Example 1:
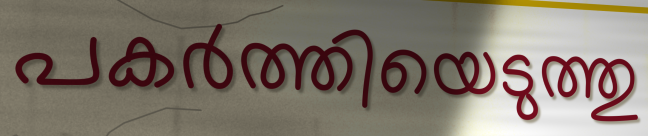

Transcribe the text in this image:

പകർത്തിയെടുത്തു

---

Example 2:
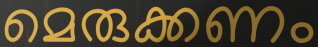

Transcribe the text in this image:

മെരുക്കണം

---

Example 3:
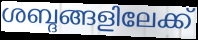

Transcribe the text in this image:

ശബ്ദങ്ങളിലേക്ക്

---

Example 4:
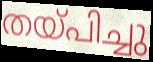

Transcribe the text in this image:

തയ്പിച്ചു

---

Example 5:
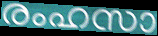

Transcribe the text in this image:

രംഹസാ